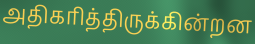
அதிகரித்திருக்கின்றன